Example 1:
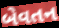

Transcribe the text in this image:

બેવતન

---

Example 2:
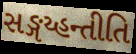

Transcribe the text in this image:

સઙ્ગય્હન્તીતિ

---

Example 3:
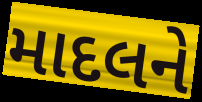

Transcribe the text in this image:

માદલને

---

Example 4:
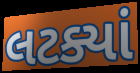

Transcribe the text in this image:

લટક્યાં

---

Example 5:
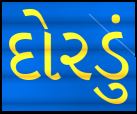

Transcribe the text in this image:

દોરડું